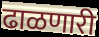
ढाळणारी